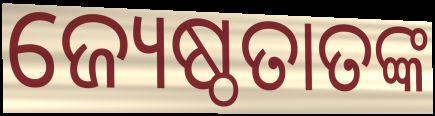
ଜ୍ୟେଷ୍ଠତାତଙ୍କ